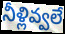
నీళ్లివ్వలే